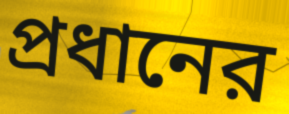
প্রধানের